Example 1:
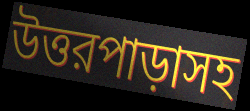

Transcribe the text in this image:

উত্তরপাড়াসহ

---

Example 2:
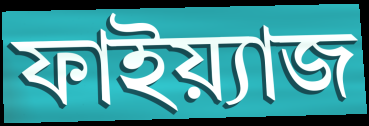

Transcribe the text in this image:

ফাইয়্যাজ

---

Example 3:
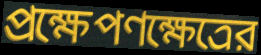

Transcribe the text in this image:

প্রক্ষেপণক্ষেত্রের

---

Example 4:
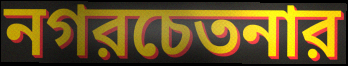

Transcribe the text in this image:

নগরচেতনার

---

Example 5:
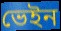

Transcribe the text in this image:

ভেইন